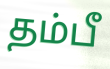
தம்பீ